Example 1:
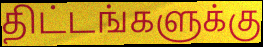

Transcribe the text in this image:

திட்டங்களுக்கு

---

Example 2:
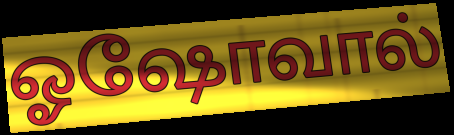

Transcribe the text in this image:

ஓஷோவால்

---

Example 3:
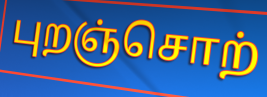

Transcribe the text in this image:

புறஞ்சொற்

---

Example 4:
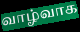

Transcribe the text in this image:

வாழ்வாக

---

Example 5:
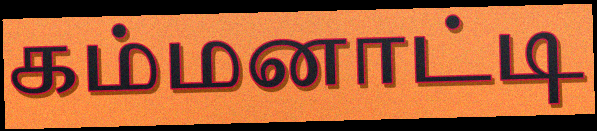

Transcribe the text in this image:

கம்மனாட்டி